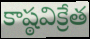
కాష్ఠవిక్రేత